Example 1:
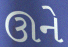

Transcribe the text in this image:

ઊને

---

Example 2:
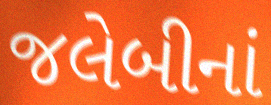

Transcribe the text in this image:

જલેબીનાં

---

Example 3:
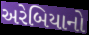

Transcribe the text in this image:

અરેબિયાનો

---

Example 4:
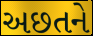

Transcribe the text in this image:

અછતને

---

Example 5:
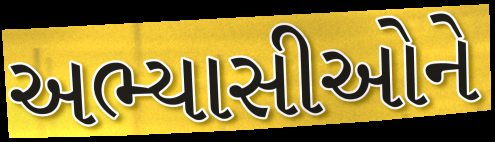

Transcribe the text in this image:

અભ્યાસીઓને